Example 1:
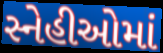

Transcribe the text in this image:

સ્નેહીઓમાં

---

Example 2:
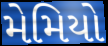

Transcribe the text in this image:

મેમિયો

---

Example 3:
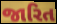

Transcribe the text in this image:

જારિત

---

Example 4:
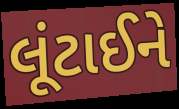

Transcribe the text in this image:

લૂંટાઈને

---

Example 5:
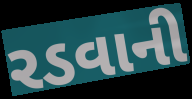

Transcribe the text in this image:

રડવાની